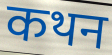
कथन